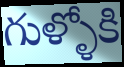
గుళ్ళోకి